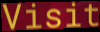
Visit